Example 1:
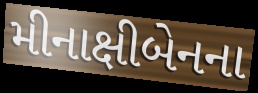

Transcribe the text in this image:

મીનાક્ષીબેનના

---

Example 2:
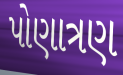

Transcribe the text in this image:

પોણાત્રણ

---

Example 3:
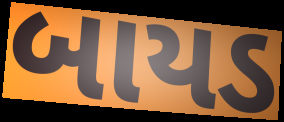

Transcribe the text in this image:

બાયડ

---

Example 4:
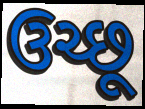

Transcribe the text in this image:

ઉચ્છૂ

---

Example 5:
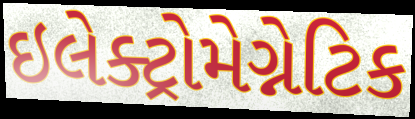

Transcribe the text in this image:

ઇલેક્ટ્રોમેગ્નેટિક